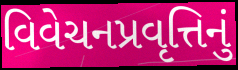
વિવેચનપ્રવૃત્તિનું